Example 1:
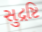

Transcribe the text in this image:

સુદ્રષ્ટિ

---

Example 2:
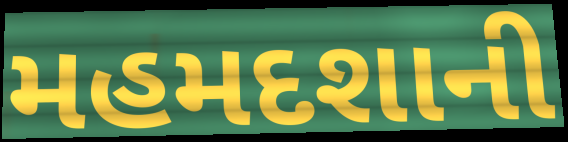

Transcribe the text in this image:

મહમદશાની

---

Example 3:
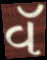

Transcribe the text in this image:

વૅ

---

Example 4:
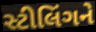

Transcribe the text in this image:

સ્ટીલિંગને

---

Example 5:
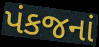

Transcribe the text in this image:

પંકજનાં